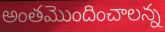
అంతమొందించాలన్న